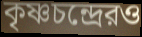
কৃষ্ণচন্দ্রেরও